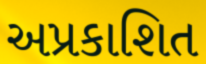
અપ્રકાશિત